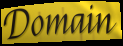
Domain